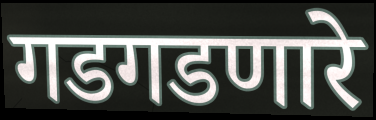
गडगडणारे